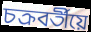
চক্ৰবৰ্তীয়ে